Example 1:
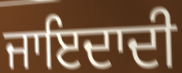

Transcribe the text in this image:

ਜਾਇਦਾਦੀ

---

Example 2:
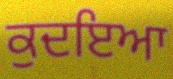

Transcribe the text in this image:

ਕੁਦਇਆ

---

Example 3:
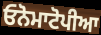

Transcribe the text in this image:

ਓਨੋਮਾਟੋਪੀਆ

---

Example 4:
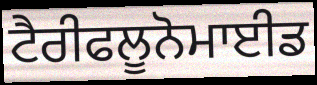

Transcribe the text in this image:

ਟੈਰੀਫਲੂਨੋਮਾਈਡ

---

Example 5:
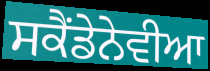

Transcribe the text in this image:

ਸਕੈਂਡੇਨੇਵੀਆ